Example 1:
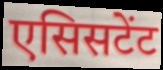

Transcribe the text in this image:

एसिसटेंट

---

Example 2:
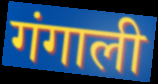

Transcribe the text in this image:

गंगाली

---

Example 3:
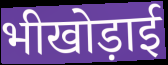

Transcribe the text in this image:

भीखोड़ाई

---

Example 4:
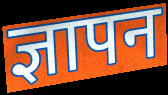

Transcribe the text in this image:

ज्ञापन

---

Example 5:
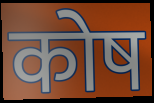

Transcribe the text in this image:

कोष